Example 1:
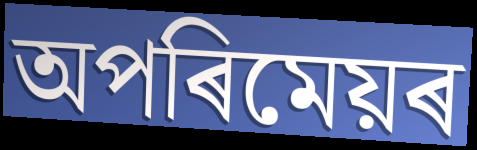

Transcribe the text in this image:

অপৰিমেয়ৰ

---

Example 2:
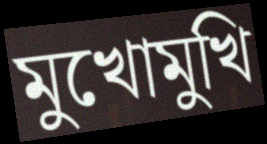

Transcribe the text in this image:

মুখোমুখি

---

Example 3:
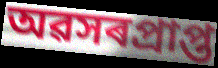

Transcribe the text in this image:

অৱসৰপ্ৰাপ্ত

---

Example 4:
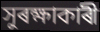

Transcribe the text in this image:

সুৰক্ষাকাৰী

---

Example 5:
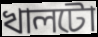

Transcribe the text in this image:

খালটো